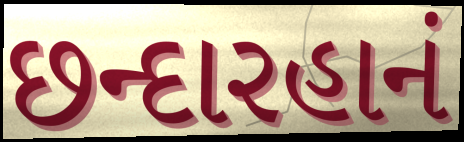
છન્દારહાનં